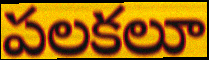
పలకలూ